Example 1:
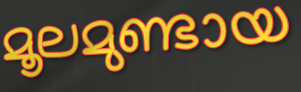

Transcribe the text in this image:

മൂലമുണ്ടായ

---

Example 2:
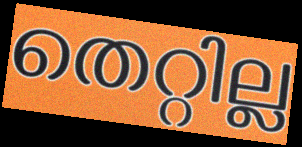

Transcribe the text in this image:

തെറ്റില്ല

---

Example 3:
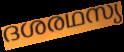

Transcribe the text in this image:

ദശരഥസ്യ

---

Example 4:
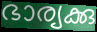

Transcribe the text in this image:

ഭാര്യക്കു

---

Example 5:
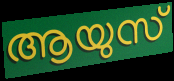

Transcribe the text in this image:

ആയുസ്